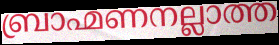
ബ്രാഹ്മണനല്ലാത്ത